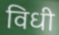
विधी